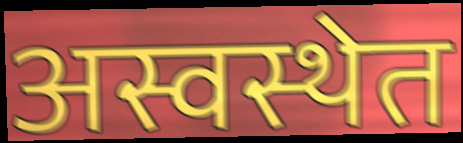
अस्वस्थेत